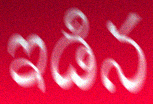
ఇడిన